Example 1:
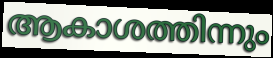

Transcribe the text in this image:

ആകാശത്തിന്നും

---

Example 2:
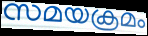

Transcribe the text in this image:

സമയക്രമം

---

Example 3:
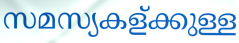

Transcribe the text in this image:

സമസ്യകള്ക്കുള്ള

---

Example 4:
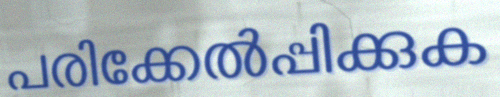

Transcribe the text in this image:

പരിക്കേൽപ്പിക്കുക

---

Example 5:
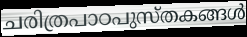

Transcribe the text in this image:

ചരിത്രപാഠപുസ്തകങ്ങൾ